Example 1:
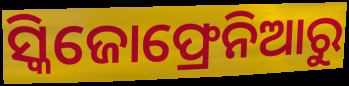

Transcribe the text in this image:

ସ୍କିଜୋଫ୍ରେନିଆରୁ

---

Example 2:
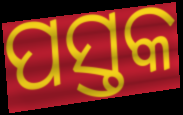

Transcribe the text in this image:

ପସ୍ତକ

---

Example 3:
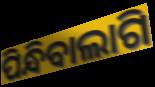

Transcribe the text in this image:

ପିନ୍ଧିବାଲାଗି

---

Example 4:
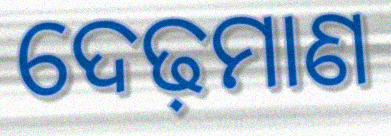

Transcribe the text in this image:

ଦେଢ଼ମାଣ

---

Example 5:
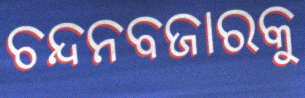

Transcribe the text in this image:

ଚନ୍ଦନବଜାରକୁ